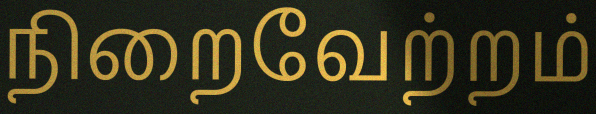
நிறைவேற்றம்